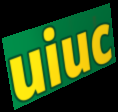
uiuc